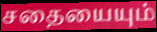
சதையையும்